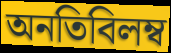
অনতিবিলম্ব